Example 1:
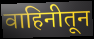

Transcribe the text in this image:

वाहिनीतून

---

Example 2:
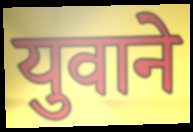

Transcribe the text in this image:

युवाने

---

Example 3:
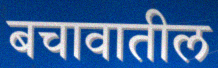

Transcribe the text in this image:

बचावातील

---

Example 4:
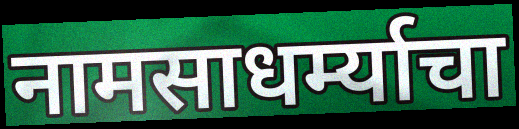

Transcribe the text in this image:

नामसाधर्म्याचा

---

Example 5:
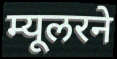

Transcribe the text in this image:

म्यूलरने